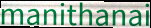
manithanai